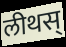
लीथस्